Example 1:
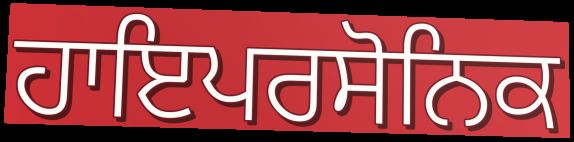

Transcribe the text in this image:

ਹਾਇਪਰਸੋਨਿਕ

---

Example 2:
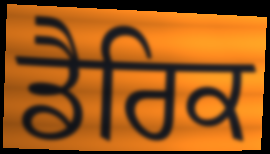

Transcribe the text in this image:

ਡੈਰਿਕ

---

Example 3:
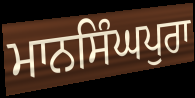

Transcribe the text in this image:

ਮਾਨਸਿੰਘਪੁਰਾ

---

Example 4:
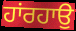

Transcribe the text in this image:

ਹਾਂਰਹਾਉ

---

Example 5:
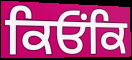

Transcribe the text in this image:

ਕਿਓਂਕਿ